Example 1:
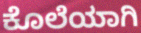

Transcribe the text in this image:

ಕೊಲೆಯಾಗಿ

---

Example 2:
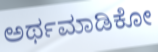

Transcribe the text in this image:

ಅರ್ಥಮಾಡಿಕೋ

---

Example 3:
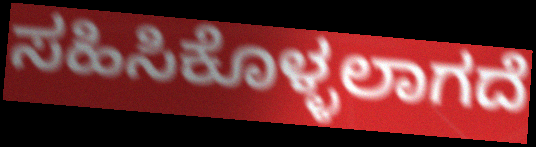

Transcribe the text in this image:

ಸಹಿಸಿಕೊಳ್ಳಲಾಗದೆ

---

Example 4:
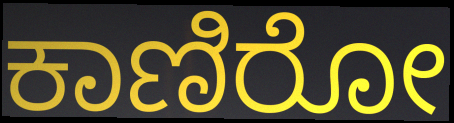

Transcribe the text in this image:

ಕಾಣಿರೋ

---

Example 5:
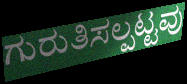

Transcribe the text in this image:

ಗುರುತಿಸಲ್ಪಟ್ಟವು